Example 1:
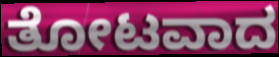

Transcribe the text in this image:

ತೋಟವಾದ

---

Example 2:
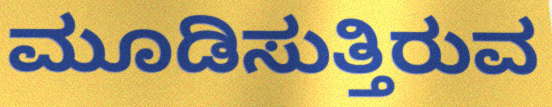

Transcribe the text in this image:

ಮೂಡಿಸುತ್ತಿರುವ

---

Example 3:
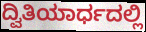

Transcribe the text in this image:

ದ್ವಿತಿಯಾರ್ಧದಲ್ಲಿ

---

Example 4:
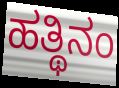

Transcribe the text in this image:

ಹತ್ಥಿನಂ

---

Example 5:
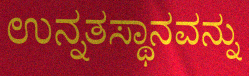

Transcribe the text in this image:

ಉನ್ನತಸ್ಥಾನವನ್ನು